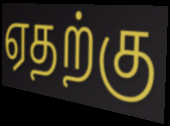
ஏதற்கு